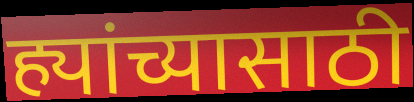
ह्यांच्यासाठी